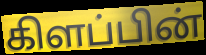
கிளப்பின்